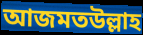
আজমতউল্লাহ